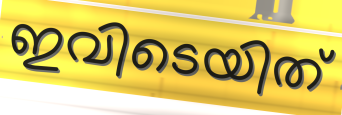
ഇവിടെയിത്